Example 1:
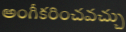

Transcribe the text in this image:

అంగీకరించవచ్చు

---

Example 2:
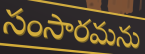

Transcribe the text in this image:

సంసారమను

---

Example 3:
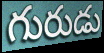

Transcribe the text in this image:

గురుడు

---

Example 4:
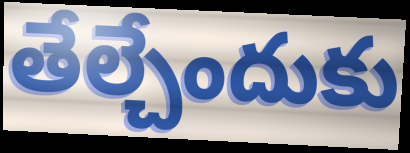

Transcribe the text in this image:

తేల్చేందుకు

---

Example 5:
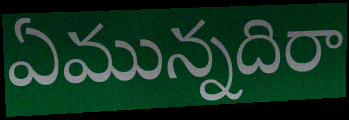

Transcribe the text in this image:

ఏమున్నదిరా